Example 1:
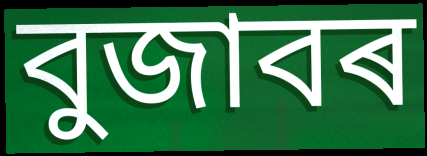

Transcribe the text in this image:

বুজাবৰ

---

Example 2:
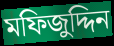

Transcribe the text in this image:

মফিজুদ্দিন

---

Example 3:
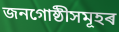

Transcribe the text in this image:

জনগোষ্ঠীসমূহৰ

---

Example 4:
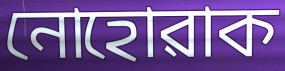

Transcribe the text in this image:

নোহোৱাক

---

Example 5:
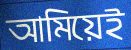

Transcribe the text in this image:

আমিয়েই